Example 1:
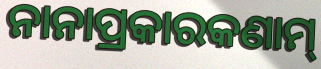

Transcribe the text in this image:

ନାନାପ୍ରକାରକଣାମ୍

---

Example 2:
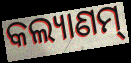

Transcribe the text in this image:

କଲ୍ୟାଣମ୍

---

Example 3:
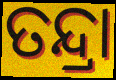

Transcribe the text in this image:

ତନ୍ଦ୍ରା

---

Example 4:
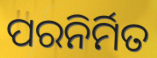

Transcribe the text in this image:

ପରନିର୍ମିତ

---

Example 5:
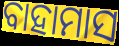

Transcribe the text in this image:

ବାହାମାସ